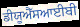
ਡੀਯੂਐੱਸਆਈਬੀ